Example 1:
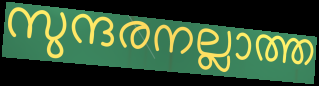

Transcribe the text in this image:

സുന്ദരനല്ലാത്ത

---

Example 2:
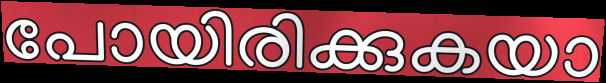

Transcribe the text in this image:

പോയിരിക്കുകയാ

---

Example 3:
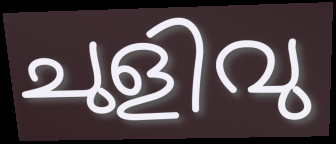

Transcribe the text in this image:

ചുളിവു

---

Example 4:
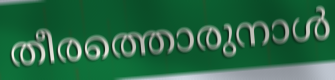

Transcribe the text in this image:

തീരത്തൊരുനാൾ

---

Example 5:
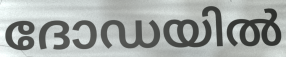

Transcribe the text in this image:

ദോഡയിൽ